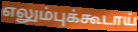
எலும்புக்கூடாய்